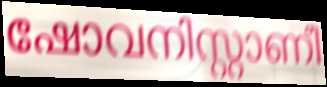
ഷോവനിസ്റ്റാണീ